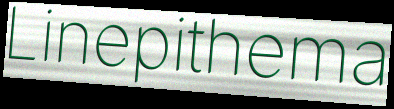
Linepithema